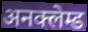
अनक्लेम्ड